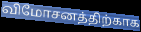
விமோசனத்திற்காக